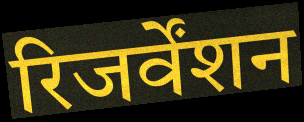
रिजर्वेंशन